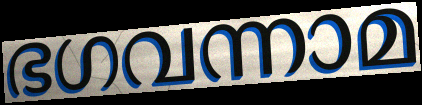
ഭഗവന്നാമ